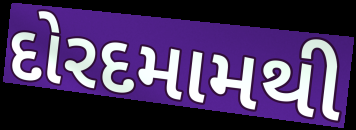
દોરદમામથી